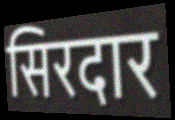
सिरदार